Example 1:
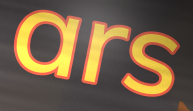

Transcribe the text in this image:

ars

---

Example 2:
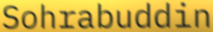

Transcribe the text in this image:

Sohrabuddin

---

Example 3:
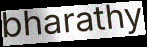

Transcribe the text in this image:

bharathy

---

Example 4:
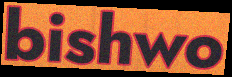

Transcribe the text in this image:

bishwo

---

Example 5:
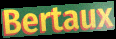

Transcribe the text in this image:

Bertaux